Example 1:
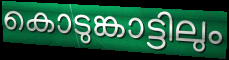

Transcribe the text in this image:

കൊടുങ്കാട്ടിലും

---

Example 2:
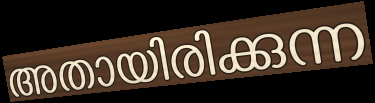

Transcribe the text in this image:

അതായിരിക്കുന്ന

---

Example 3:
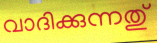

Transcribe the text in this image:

വാദിക്കുന്നതു്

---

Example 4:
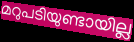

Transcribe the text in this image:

മറുപടിയുണ്ടായില്ല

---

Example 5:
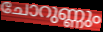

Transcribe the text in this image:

ചോറുണ്ണും